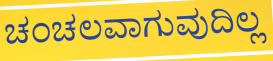
ಚಂಚಲವಾಗುವುದಿಲ್ಲ